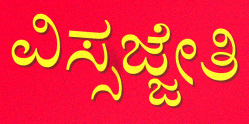
ವಿಸ್ಸಜ್ಜೇತಿ